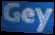
Gey